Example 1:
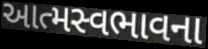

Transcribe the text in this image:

આત્મસ્વભાવના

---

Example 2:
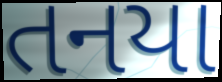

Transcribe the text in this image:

તનયા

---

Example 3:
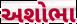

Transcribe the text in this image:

અશોભા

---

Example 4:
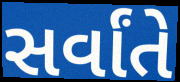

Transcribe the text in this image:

સર્વાંતે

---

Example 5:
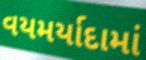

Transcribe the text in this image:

વયમર્યાદામાં